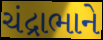
ચંદ્રાભાને